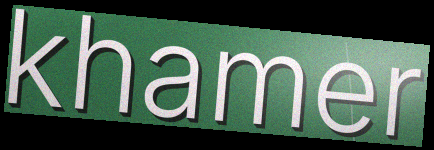
khamer